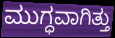
ಮುಗ್ಧವಾಗಿತ್ತು